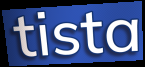
tista